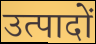
उत्पादों